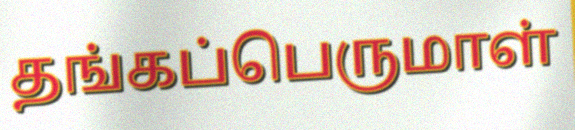
தங்கப்பெருமாள்